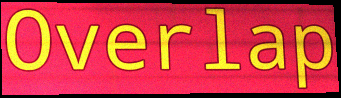
Overlap